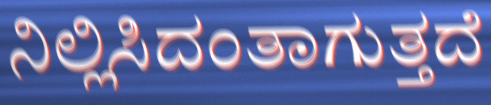
ನಿಲ್ಲಿಸಿದಂತಾಗುತ್ತದೆ